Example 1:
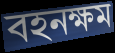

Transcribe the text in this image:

বহনক্ষম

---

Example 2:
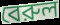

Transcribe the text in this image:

বেরুল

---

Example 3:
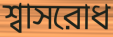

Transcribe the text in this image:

শ্বাসরোধ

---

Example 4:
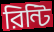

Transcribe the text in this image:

রিন্টি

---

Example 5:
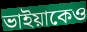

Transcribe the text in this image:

ভাইয়াকেও